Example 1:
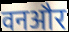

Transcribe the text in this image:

वनऔर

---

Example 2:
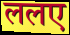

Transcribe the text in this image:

ललए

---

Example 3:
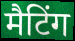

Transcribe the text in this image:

मैटिंग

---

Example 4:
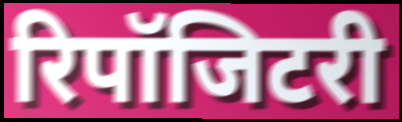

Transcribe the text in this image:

रिपॉजिटरी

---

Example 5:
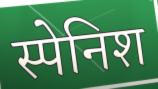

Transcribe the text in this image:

स्पेनिश